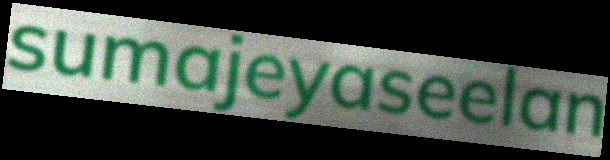
sumajeyaseelan